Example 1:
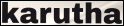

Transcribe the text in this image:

karutha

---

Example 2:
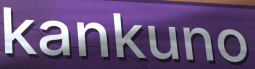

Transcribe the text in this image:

kankuno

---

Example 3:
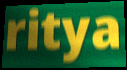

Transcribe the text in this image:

ritya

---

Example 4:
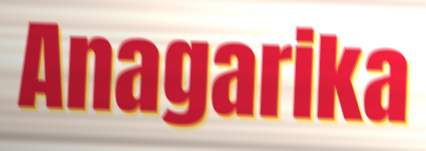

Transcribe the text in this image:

Anagarika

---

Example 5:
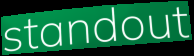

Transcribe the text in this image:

standout